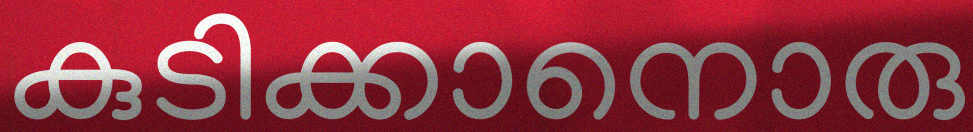
കുടിക്കാനൊരു